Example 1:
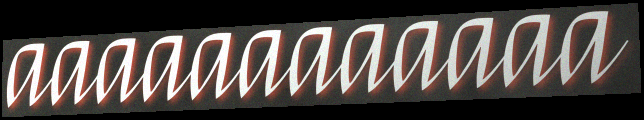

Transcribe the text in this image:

aaaaaaaaaaaa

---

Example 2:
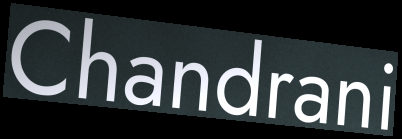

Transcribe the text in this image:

Chandrani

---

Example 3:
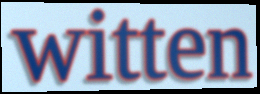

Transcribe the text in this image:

witten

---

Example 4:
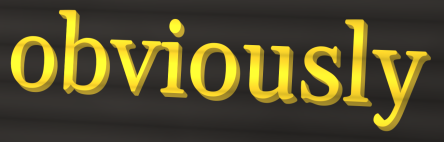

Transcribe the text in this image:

obviously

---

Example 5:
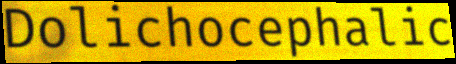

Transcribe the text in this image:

Dolichocephalic